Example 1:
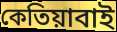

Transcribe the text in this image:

কেতিয়াবাই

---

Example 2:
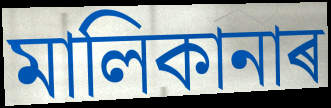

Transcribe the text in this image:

মালিকানাৰ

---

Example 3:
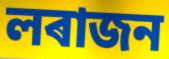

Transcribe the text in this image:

লৰাজন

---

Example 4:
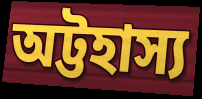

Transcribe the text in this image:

অট্টহাস্য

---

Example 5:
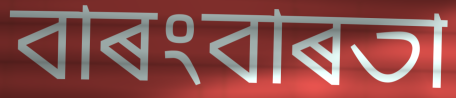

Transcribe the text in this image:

বাৰংবাৰতা